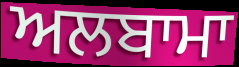
ਅਲਬਾਮਾ